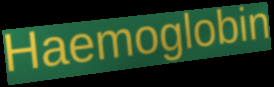
Haemoglobin